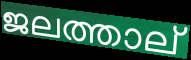
ജലത്താല്